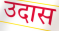
उदास